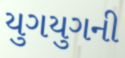
યુગયુગની